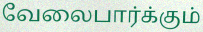
வேலைபார்க்கும்